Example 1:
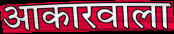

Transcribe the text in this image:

आकारवाला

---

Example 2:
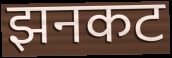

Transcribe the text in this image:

झनकट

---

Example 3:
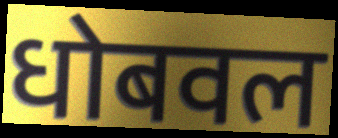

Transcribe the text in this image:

धोबवल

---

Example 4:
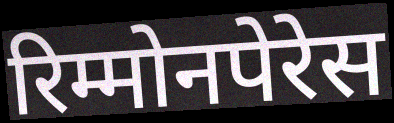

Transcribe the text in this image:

रिम्मोनपेरेस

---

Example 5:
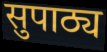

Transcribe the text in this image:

सुपाठ्य